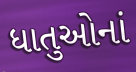
ધાતુઓનાં